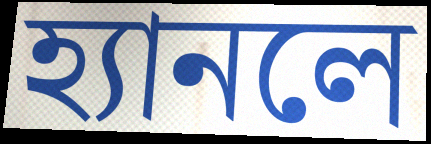
হ্যানলে